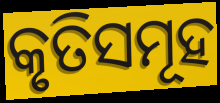
କୃତିସମୂହ